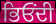
ਭਿਓਂਦੀ